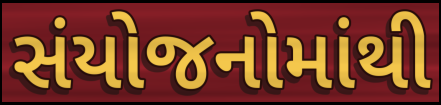
સંયોજનોમાંથી